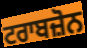
ਟਰਾਬਜ਼ੋਨ